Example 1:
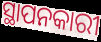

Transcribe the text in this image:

ସ୍ଥାପନକାରୀ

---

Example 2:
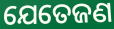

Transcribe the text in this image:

ଯେତେଜଣ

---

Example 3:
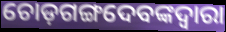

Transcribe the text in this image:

ଚୋଡ଼ଗଙ୍ଗଦେବଙ୍କଦ୍ୱାରା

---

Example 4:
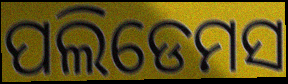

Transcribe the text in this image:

ପଲିଡେମସ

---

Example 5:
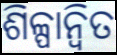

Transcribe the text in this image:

ଶିଳ୍ପାନ୍ବିତ